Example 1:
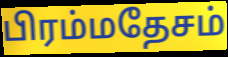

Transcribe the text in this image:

பிரம்மதேசம்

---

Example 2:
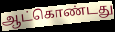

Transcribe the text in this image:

ஆட்கொண்டது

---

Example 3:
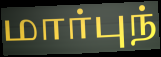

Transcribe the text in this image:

மார்புந்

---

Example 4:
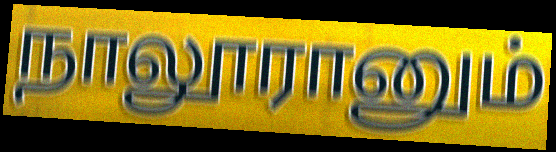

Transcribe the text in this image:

நாலூரானும்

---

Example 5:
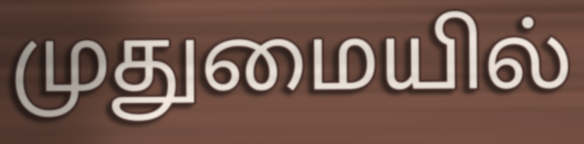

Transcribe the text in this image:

முதுமையில்